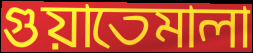
গুয়াতেমালা